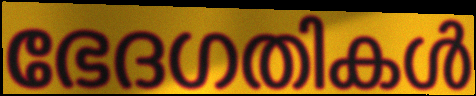
ഭേദഗതികൾ